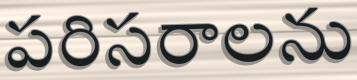
పరిసరాలను